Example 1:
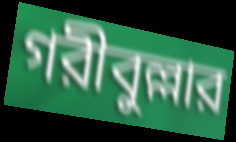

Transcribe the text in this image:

গরীবুল্লার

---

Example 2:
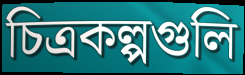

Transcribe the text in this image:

চিত্রকল্পগুলি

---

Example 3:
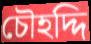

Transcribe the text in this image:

চৌহদ্দি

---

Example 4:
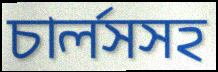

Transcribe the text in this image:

চার্লসসহ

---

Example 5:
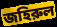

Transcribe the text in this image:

জহিরুল